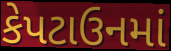
કેપટાઉનમાં